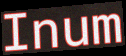
Inum